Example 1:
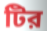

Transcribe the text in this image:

টির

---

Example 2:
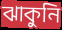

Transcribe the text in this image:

ঝাকুনি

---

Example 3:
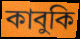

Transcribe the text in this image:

কাবুকি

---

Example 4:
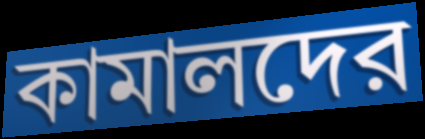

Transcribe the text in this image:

কামালদের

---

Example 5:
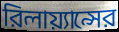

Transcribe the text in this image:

রিলায়্যান্সের